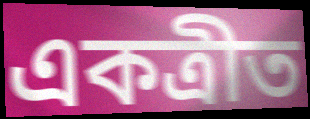
একত্ৰীত